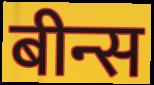
बीन्‍स